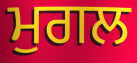
ਮੁਗਲ